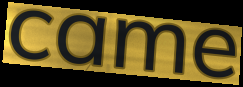
came